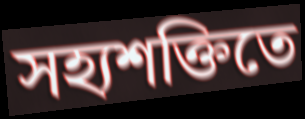
সহ্যশক্তিতে